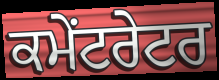
ਕਮੇਂਟਰੇਟਰ